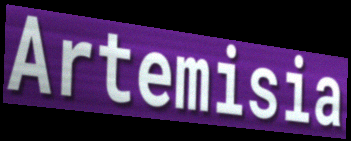
Artemisia